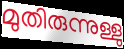
മുതിരുന്നുള്ളു